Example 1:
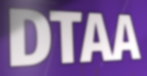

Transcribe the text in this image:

DTAA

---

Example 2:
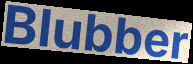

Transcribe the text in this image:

Blubber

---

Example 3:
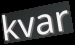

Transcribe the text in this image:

kvar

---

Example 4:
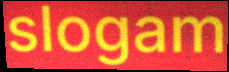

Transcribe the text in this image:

slogam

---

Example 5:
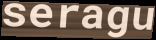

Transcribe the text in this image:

seragu